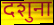
दशुना